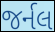
જર્નલ